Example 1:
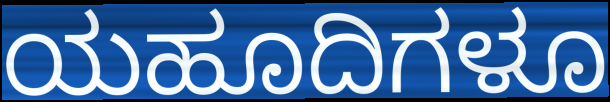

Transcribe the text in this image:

ಯಹೂದಿಗಳೂ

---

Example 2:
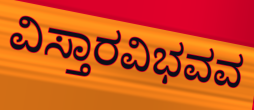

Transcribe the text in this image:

ವಿಸ್ತಾರವಿಭವವ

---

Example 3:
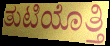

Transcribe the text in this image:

ತುಟಿಯೊತ್ತಿ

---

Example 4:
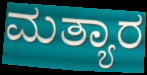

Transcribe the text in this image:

ಮತ್ಯಾರ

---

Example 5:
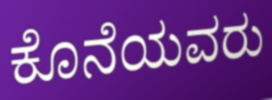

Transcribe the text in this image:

ಕೊನೆಯವರು